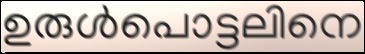
ഉരുൾപൊട്ടലിനെ